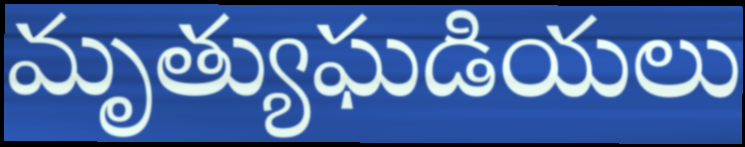
మృత్యుఘడియలు